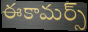
ఈకామర్స్